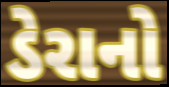
ડેરાનો